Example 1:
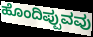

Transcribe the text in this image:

ಹೊಂದಿಪ್ಪುವವು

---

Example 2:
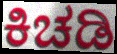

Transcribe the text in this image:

ಕಿಚಡಿ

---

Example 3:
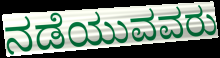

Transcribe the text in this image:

ನಡೆಯುವವರು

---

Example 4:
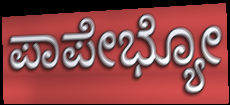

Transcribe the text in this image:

ಪಾಪೇಭ್ಯೋ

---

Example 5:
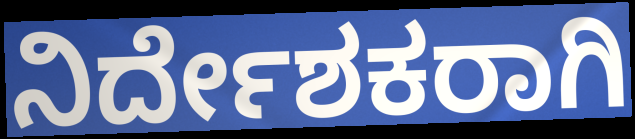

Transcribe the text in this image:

ನಿರ್ದೇಶಕರಾಗಿ